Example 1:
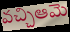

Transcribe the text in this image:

వచ్చిఆమె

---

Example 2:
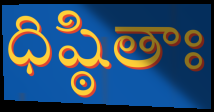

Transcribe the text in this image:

ధిష్ఠితాః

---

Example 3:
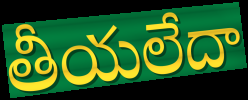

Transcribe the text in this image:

తీయలేదా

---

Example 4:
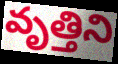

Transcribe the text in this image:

వృత్తిని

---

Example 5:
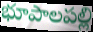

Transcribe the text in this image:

భూపాలపల్లి